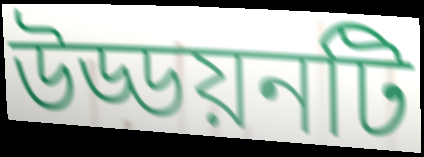
উড্ডয়নটি